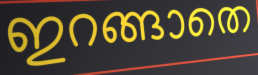
ഇറങ്ങാതെ